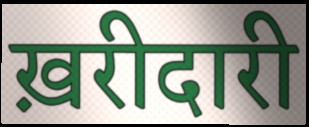
ख़रीदारी